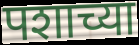
पशाच्या